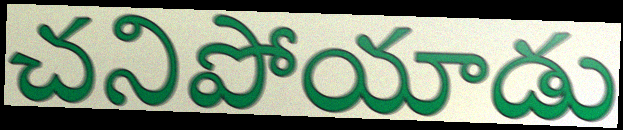
చనిపోయాడు